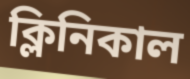
ক্লিনিকাল